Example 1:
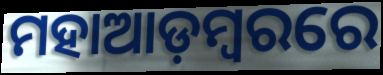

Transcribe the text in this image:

ମହାଆଡ଼ମ୍ୱରରେ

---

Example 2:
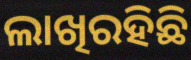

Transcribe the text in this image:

ଲାଖିରହିଛି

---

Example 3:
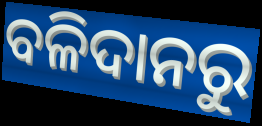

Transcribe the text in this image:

ବଳିଦାନରୁ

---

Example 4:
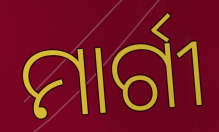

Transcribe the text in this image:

ମାର୍ଗୀ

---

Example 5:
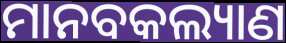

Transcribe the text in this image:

ମାନବକଲ୍ୟାଣ